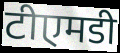
टीएमडी